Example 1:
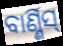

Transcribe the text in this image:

ବାର୍ଣ୍ଣିସ୍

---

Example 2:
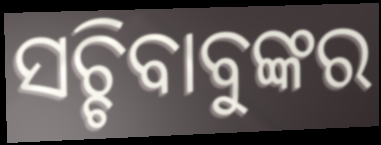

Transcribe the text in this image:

ସଚ୍ଚିବାବୁଙ୍କର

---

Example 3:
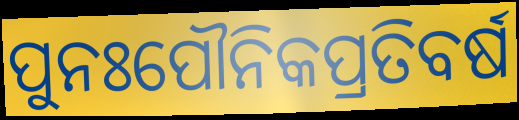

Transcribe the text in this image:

ପୁନଃପୌନିକପ୍ରତିବର୍ଷ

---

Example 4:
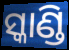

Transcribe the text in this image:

ସ୍କାଣ୍ଡି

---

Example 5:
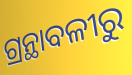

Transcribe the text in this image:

ଗ୍ରନ୍ଥାବଳୀରୁ